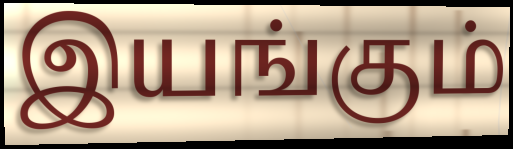
இயங்கும்